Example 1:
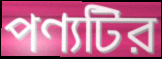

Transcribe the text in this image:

পণ্যটির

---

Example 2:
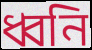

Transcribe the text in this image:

ধ্বনি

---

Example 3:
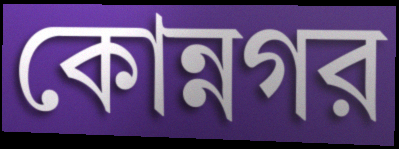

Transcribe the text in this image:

কোন্নগর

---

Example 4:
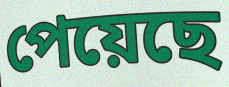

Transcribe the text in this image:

পেয়েছে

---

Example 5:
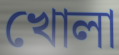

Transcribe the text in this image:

খোলা